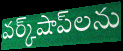
వర్క్‌షాప్‌లను